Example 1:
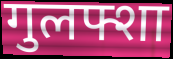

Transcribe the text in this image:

गुलफ्शा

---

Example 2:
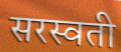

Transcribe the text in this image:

सरस्वती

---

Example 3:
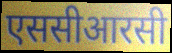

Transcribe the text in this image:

एससीआरसी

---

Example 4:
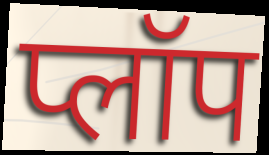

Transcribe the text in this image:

प्लॉप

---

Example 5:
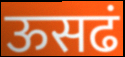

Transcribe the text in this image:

ऊसढं